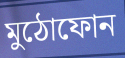
মুঠোফোন